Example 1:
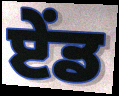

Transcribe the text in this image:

ਏੰਡ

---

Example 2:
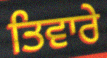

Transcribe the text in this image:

ਤਿਵਾਰੇ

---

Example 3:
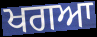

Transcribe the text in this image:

ਖਗਆ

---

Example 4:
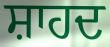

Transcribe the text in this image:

ਸ਼ਾਹਦ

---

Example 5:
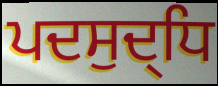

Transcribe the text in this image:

ਪਦਸੁਦ੍ਧਿ